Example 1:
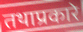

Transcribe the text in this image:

तथाप्रकारे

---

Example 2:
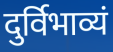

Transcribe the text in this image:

दुर्विभाव्यं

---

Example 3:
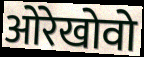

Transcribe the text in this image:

ओरेखोवो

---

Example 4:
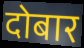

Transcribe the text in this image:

दोबार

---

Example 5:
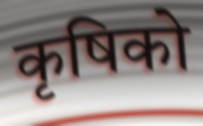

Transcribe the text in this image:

कृषिको